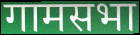
गामसभा